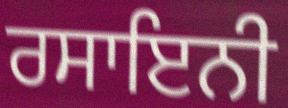
ਰਸਾਇਨੀ